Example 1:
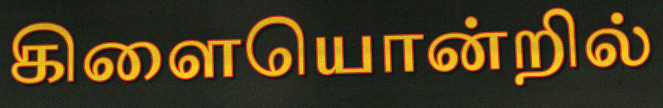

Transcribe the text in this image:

கிளையொன்றில்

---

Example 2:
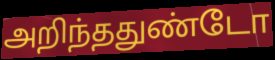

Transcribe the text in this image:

அறிந்ததுண்டோ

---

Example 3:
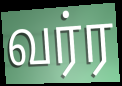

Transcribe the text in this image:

வர்ர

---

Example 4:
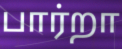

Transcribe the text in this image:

பார்றா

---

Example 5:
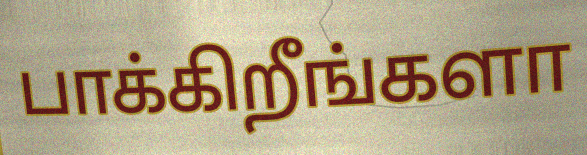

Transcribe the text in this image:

பாக்கிறீங்களா